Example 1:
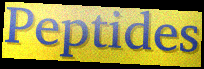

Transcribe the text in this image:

Peptides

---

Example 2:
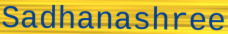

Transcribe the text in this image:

Sadhanashree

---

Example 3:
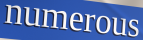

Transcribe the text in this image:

numerous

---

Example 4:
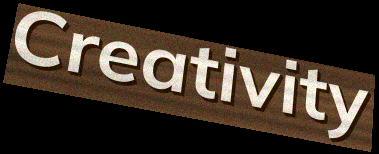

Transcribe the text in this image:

Creativity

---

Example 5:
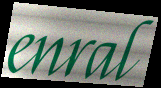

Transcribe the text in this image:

enral